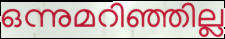
ഒന്നുമറിഞ്ഞില്ല